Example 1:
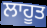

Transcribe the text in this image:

ਲਾਹੂਤ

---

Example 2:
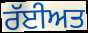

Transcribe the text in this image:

ਰੱਈਅਤ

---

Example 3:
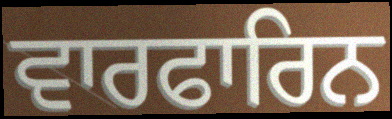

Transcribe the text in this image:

ਵਾਰਫਾਰਿਨ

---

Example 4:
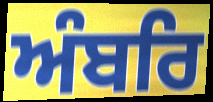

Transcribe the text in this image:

ਅੰਬਰਿ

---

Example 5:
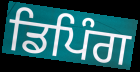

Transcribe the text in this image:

ਡਿਪਿੰਗ